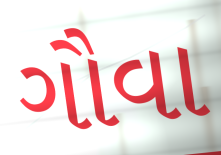
ગૌવા